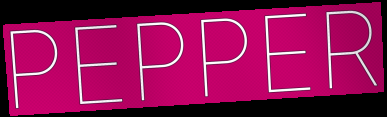
PEPPER